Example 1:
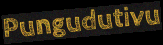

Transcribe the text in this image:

Pungudutivu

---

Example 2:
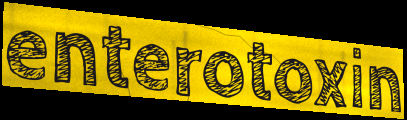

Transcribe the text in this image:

enterotoxin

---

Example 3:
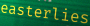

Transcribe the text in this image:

easterlies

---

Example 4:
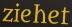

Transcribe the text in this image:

ziehet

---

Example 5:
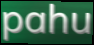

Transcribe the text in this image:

pahu